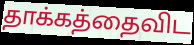
தாக்கத்தைவிட